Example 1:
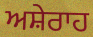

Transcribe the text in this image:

ਅਸ਼ੇਰਾਹ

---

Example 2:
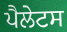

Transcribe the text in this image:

ਪੈਲੇਟਸ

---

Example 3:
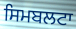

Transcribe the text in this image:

ਸਿਮਬਲਟਾ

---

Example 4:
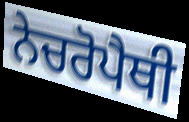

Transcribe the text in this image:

ਨੇਚਰੋਪੈਥੀ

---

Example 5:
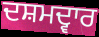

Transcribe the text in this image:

ਦਸ਼ਮਦ੍ਵਾਰ